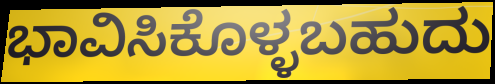
ಭಾವಿಸಿಕೊಳ್ಳಬಹುದು